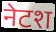
नेटश